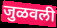
जुळवली